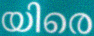
യിരെ